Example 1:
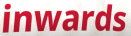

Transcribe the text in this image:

inwards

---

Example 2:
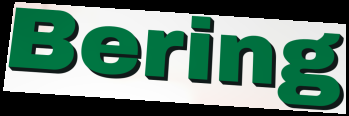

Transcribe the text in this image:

Bering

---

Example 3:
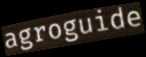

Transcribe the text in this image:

agroguide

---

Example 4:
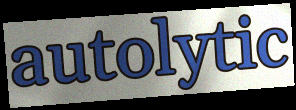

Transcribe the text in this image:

autolytic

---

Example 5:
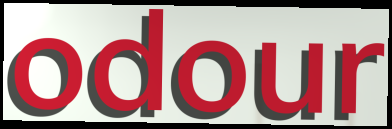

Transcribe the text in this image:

odour